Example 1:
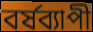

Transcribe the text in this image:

বর্ষব্যাপী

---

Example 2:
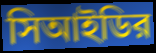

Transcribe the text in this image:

সিআইডির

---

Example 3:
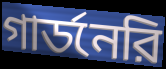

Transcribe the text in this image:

গার্ডনেরি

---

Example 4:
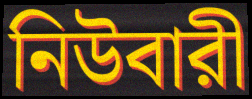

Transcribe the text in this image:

নিউবারী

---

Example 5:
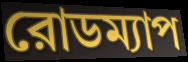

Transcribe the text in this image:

রোডম্যাপ